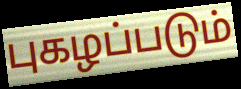
புகழப்படும்